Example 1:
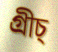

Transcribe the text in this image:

গ্ৰীচ্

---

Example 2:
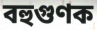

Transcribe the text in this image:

বহুগুণক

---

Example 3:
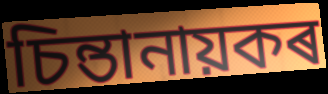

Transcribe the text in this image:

চিন্তানায়কৰ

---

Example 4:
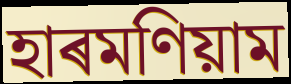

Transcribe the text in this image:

হাৰমণিয়াম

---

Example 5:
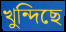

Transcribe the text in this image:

খুন্দিছে